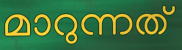
മാറുന്നത്